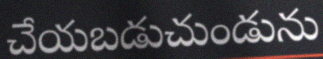
చేయబడుచుండును